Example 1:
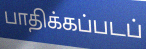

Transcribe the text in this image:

பாதிக்கப்படப்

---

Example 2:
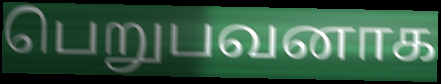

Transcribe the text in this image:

பெறுபவனாக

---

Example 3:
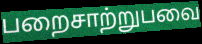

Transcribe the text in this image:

பறைசாற்றுபவை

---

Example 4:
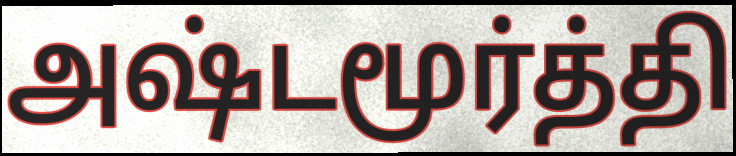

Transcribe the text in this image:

அஷ்டமூர்த்தி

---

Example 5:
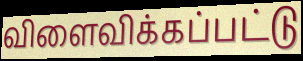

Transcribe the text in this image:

விளைவிக்கப்பட்டு